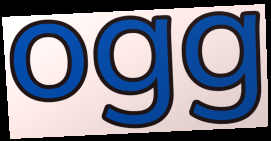
ogg